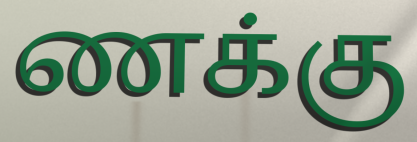
ணக்கு